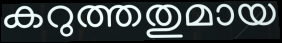
കറുത്തതുമായ